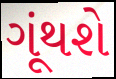
ગૂંથશે